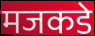
मजकडे